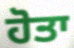
ਹੋਤਾ